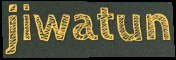
jiwatun